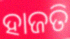
ହାଜତି